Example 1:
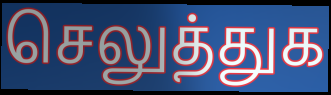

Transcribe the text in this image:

செலுத்துக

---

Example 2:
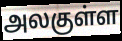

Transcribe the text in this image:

அலகுள்ள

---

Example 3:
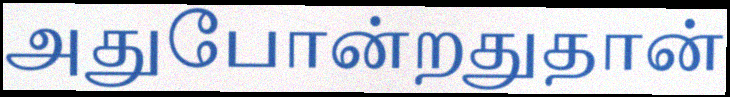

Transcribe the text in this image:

அதுபோன்றதுதான்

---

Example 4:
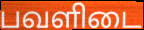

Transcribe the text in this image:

பவளிடை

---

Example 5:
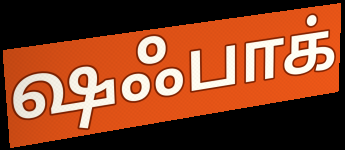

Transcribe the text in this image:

ஷஃபாக்